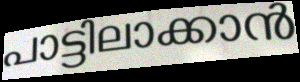
പാട്ടിലാക്കാൻ